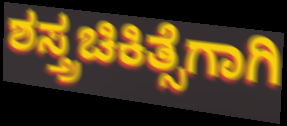
ಶಸ್ತ್ರಚಿಕಿತ್ಸೆಗಾಗಿ